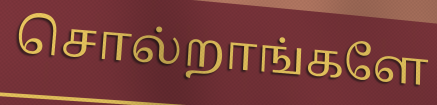
சொல்றாங்களே